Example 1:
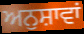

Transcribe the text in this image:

ਅਨੁਸ਼ਾਵਾਂ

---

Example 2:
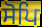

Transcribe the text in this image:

ਸੋਪਿ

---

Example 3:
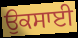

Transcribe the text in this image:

ਉਕਸਾਈ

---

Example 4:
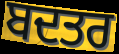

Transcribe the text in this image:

ਬਦਤਰ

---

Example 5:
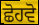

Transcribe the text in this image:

ਛੋਹਵੋ